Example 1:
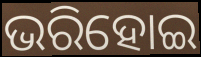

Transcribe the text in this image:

ଭରିହୋଇ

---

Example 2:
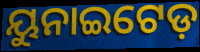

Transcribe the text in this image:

ୟୁନାଇଟେଡ଼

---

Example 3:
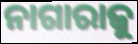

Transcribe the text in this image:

ନାଗାରାଜୁ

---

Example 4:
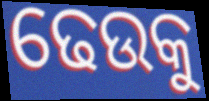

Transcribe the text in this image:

ଢେଉକୁ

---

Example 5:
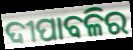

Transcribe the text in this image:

ଦୀପାବଳିର